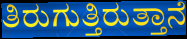
ತಿರುಗುತ್ತಿರುತ್ತಾನೆ